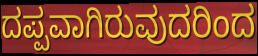
ದಪ್ಪವಾಗಿರುವುದರಿಂದ